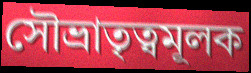
সৌভ্রাতৃত্বমূলক